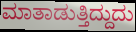
ಮಾತಾಡುತ್ತಿದ್ದುದು